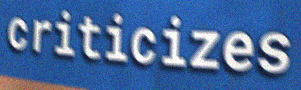
criticizes